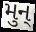
મુન્